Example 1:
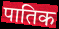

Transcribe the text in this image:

पातिक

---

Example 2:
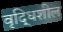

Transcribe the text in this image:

वृद्धिशील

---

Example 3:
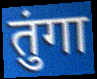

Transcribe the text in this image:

तुंगा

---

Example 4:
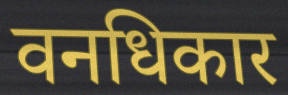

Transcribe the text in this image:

वनधिकार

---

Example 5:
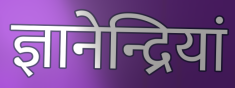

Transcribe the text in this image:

ज्ञानेन्द्रियां